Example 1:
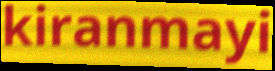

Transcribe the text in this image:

kiranmayi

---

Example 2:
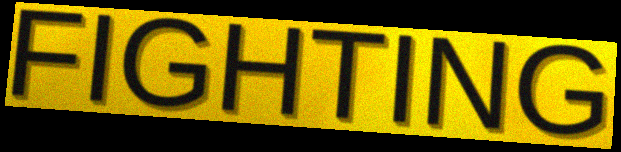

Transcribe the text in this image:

FIGHTING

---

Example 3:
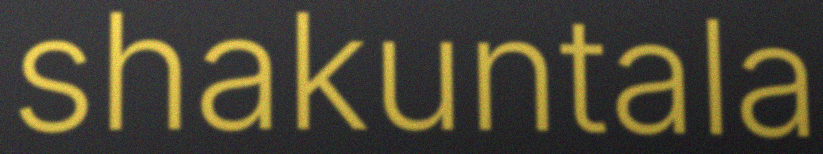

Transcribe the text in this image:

shakuntala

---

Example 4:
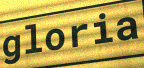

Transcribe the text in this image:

gloria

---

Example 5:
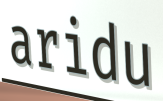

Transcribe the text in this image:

aridu